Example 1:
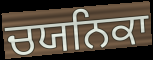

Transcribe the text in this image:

ਚਯਨਿਕਾ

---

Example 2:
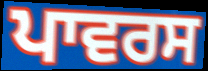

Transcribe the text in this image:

ਪਾਵਰਸ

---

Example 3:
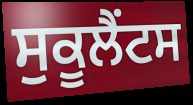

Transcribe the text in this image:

ਸੁਕੂਲੈਂਟਸ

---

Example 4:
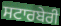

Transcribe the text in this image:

ਸਟਾਰਬੇਰੀ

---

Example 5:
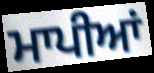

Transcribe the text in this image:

ਮਾਪੀਆਂ